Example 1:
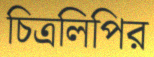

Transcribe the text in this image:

চিত্রলিপির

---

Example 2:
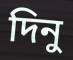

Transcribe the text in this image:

দিনু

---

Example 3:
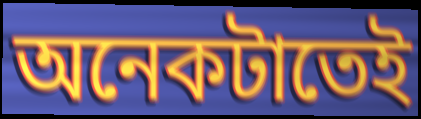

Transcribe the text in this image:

অনেকটাতেই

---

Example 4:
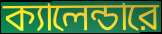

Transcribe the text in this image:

ক্যালেন্ডারে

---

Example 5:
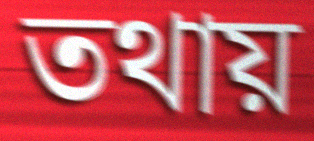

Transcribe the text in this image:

তথায়